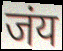
जंय